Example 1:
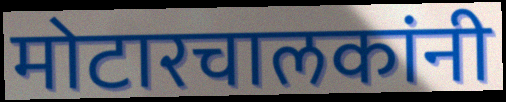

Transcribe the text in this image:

मोटारचालकांनी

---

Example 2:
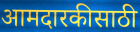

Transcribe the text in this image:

आमदारकीसाठी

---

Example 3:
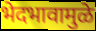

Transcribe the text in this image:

भेदभावामुळे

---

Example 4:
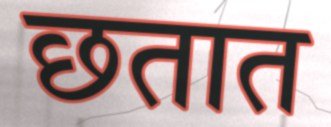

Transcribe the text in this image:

छतात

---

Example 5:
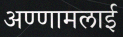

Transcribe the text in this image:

अण्णामलाई